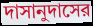
দাসানুদাসের